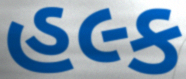
હલ્ક